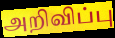
அறிவிப்பு